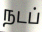
நடப்